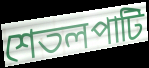
শেতলপাটি